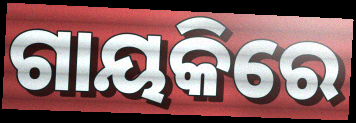
ଗାୟକିରେ